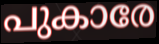
പുകാരേ